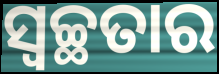
ସ୍ଵଚ୍ଛତାର